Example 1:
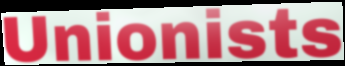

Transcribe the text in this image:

Unionists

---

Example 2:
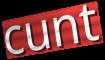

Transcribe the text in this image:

cunt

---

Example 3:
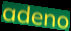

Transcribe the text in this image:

adeno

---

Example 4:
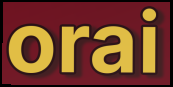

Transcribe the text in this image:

orai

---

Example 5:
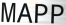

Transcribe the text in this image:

MAPP